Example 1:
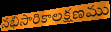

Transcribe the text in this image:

నభిసారికాలక్షణము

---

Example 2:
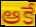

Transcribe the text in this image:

ఆకే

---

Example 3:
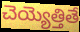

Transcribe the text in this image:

చెయ్యెత్తితే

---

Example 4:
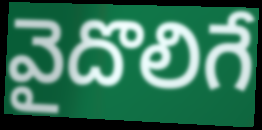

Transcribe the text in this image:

వైదొలిగే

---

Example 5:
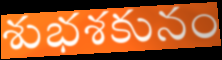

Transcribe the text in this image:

శుభశకునం